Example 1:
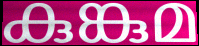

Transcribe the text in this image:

കുങ്കുമ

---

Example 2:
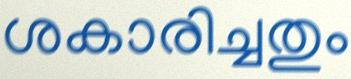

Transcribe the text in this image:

ശകാരിച്ചതും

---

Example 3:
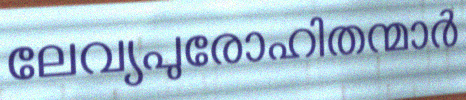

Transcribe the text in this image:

ലേവ്യപുരോഹിതന്മാർ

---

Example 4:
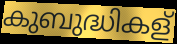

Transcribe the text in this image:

കുബുദ്ധികള്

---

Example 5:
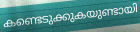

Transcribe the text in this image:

കണ്ടെടുക്കുകയുണ്ടായി